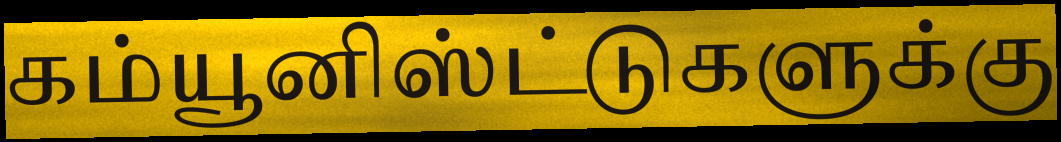
கம்யூனிஸ்ட்டுகளுக்கு